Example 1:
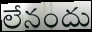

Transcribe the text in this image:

లేనందు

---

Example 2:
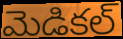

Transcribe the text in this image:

మెడికల్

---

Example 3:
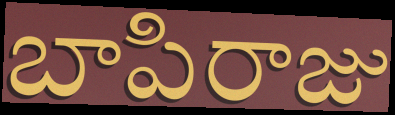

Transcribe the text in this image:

బాపిరాజు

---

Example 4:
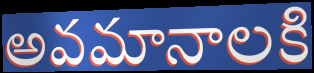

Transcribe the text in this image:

అవమానాలకి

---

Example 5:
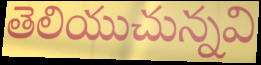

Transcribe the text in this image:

తెలియుచున్నవి